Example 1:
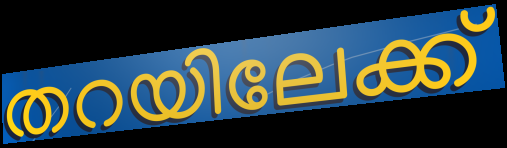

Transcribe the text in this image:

തറയിലേക്ക്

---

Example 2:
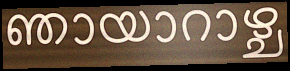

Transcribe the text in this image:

ഞായാറാഴ്ച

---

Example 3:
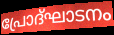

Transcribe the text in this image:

പ്രോദ്ഘാടനം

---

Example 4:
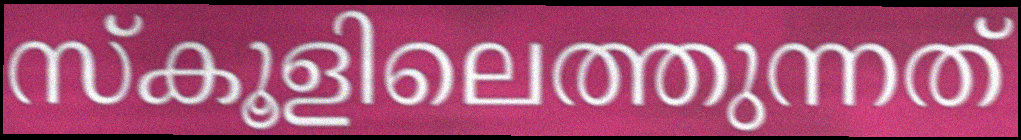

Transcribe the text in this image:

സ്കൂളിലെത്തുന്നത്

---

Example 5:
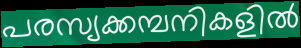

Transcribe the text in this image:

പരസ്യക്കമ്പനികളിൽ